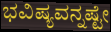
ಭವಿಷ್ಯವನ್ನಷ್ಟೇ